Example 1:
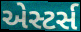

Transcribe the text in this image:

એસ્ટર્સ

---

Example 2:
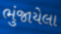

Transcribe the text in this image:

ભુંજાયેલા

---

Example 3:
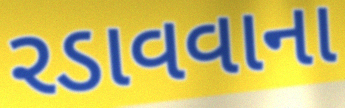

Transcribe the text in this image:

રડાવવાના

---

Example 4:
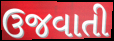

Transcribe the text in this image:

ઉજવાતી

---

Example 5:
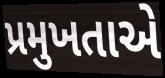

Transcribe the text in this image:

પ્રમુખતાએ